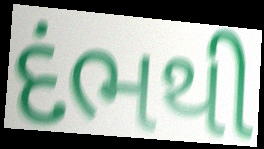
દંભથી